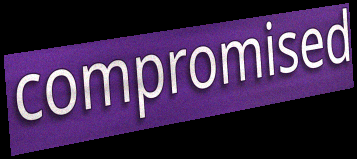
compromised